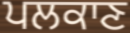
ਪਲਕਾਣ